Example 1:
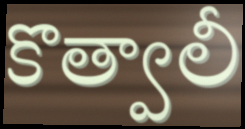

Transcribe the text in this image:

కొత్వాలీ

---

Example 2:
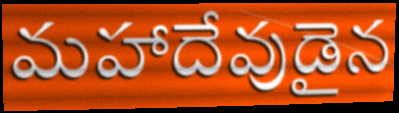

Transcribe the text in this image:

మహాదేవుడైన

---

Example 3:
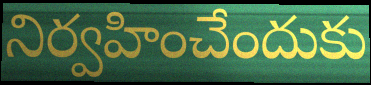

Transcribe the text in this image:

నిర్వహించేందుకు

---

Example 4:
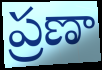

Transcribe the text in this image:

ప్రణా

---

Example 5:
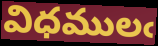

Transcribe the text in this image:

విధములఁ